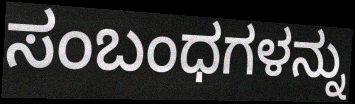
ಸಂಬಂಧಗಳನ್ನು